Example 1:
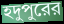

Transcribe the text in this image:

হদুপুরের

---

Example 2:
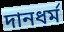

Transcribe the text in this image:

দানধর্ম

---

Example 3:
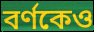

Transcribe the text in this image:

বর্ণকেও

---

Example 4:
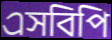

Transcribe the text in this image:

এসবিপি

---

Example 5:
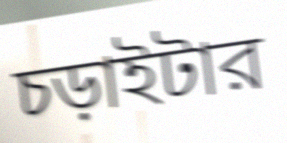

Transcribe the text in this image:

চড়াইটার